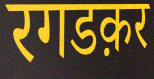
रगडक़र